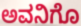
ಅವನಿಗೊ